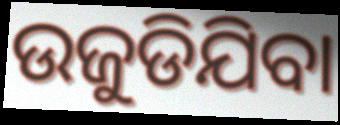
ଉଜୁଡିଯିବା